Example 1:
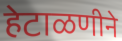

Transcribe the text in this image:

हेटाळणीने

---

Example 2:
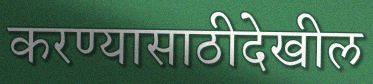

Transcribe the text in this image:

करण्यासाठीदेखील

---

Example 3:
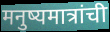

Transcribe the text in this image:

मनुष्यमात्रांची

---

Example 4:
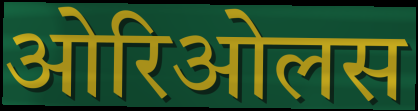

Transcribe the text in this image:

ओरिओलस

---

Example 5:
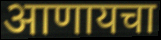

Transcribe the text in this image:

आणायचा